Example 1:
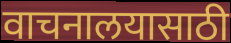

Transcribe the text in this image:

वाचनालयासाठी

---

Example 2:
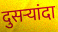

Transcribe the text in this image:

दुसर्‍यांदा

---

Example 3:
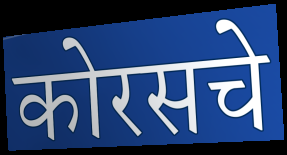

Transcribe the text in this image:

कोरसचे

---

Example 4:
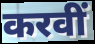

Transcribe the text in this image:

करवीं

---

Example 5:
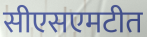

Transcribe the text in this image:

सीएसएमटीत